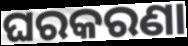
ଘରକରଣା